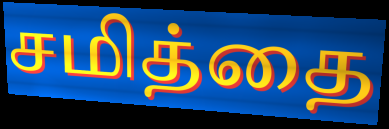
சமித்தை